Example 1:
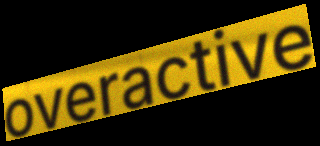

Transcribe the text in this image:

overactive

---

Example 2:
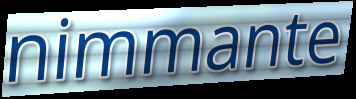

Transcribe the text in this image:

nimmante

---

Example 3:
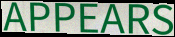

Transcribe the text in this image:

APPEARS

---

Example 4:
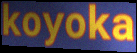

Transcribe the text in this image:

koyoka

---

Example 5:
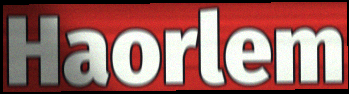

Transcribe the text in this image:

Haorlem